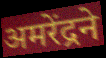
अमरेंद्रने